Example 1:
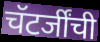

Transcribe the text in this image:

चॅटर्जींची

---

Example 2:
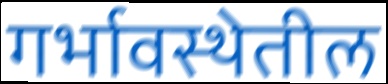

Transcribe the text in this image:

गर्भावस्थेतील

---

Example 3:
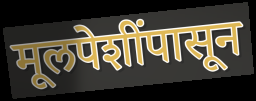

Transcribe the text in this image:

मूलपेशींपासून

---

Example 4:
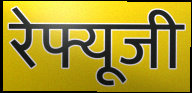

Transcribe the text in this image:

रेफ्यूजी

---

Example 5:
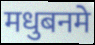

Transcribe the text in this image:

मधुबनमे